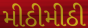
મીઠીમીઠી